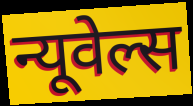
न्यूवेल्स